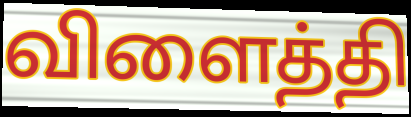
விளைத்தி